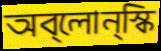
অব্‌লোন্‌স্কি